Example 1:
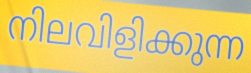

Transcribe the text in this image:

നിലവിളിക്കുന്ന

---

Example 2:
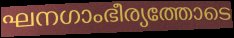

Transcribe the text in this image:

ഘനഗാംഭീര്യത്തോടെ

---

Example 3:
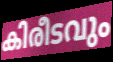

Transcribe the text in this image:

കിരീടവും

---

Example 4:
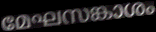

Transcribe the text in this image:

മേഘസങ്കാശം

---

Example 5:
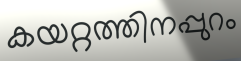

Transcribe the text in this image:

കയറ്റത്തിനപ്പുറം